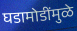
घडामोडींमुळे